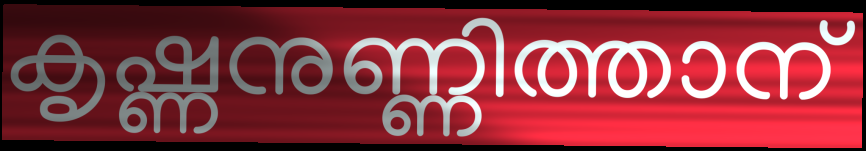
കൃഷ്ണനുണ്ണിത്താന്